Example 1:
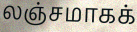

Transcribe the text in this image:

லஞ்சமாகக்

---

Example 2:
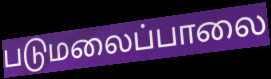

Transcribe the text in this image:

படுமலைப்பாலை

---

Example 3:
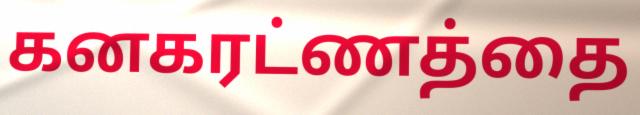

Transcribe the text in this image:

கனகரட்ணத்தை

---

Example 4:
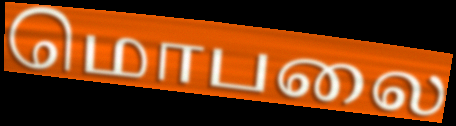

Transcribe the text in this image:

மொபலை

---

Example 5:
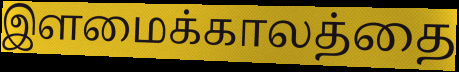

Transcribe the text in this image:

இளமைக்காலத்தை